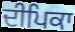
ਦੀਪਿਕਾ